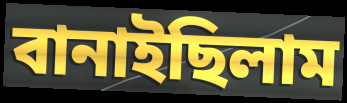
বানাইছিলাম